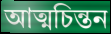
আত্মচিন্তন